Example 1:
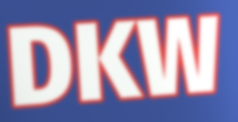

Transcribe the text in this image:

DKW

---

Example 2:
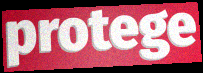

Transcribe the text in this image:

protege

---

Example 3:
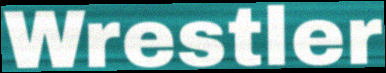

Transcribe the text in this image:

Wrestler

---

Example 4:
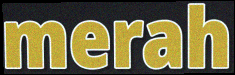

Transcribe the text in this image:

merah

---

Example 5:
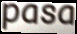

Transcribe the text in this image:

pasa